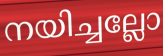
നയിച്ചല്ലോ